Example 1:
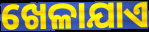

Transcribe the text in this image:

ଖେଳାଯାଏ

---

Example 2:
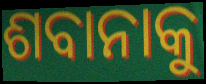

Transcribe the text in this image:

ଶବାନାକୁ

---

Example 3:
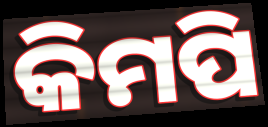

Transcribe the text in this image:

କିମପି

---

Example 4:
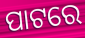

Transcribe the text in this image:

ପାଟରେ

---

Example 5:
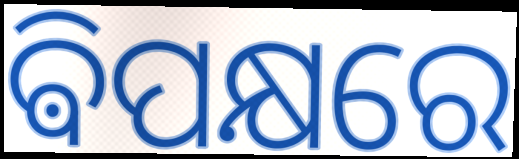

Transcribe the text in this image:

ଵିପକ୍ଷରେ